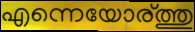
എന്നെയോര്ത്തു